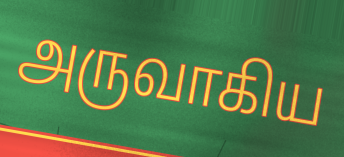
அருவாகிய